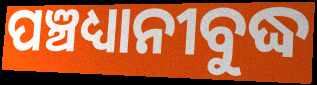
ପଞ୍ଚଧ୍ୟାନୀବୁଦ୍ଧ